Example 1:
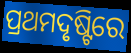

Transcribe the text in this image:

ପ୍ରଥମଦୃଷ୍ଟିରେ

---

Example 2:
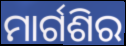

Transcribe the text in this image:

ମାର୍ଗଶିର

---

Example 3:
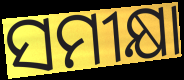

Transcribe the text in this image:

ସମୀକ୍ଷା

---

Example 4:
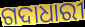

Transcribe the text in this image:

ଗଦାଧାରୀ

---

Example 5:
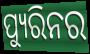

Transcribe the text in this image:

ପ୍ୟୁରିନର